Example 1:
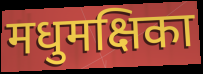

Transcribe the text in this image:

मधुमक्षिका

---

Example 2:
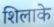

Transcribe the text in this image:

शिलाके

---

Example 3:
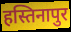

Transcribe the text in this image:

हस्तिनापुर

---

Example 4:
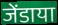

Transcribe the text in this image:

जेंडाया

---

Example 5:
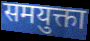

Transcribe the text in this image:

समयुक्ता